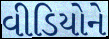
વીડિયોને